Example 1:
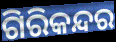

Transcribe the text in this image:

ଗିରିକନ୍ଦର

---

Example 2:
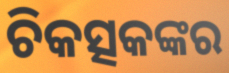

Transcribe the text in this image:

ଚିକତ୍ସକଙ୍କର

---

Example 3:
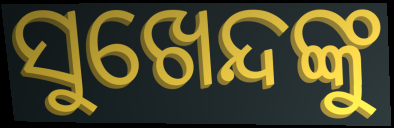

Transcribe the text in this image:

ସୁଖେନ୍ଦଙ୍କୁ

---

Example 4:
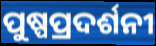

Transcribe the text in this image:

ପୁଷ୍ପପ୍ରଦର୍ଶନୀ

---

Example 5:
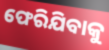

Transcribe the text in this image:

ଫେରିଯିବାକୁ